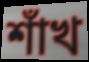
শাঁখ